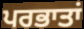
ਪਰਭਾਤਾਂ